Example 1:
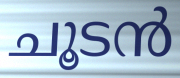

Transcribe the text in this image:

ചൂടൻ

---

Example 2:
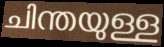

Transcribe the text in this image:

ചിന്തയുള്ള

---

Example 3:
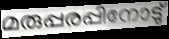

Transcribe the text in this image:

മരുപ്പരപ്പിനോടു്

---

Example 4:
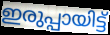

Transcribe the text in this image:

ഇരുപ്പായിട്ട്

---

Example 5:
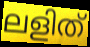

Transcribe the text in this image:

ലളിത്